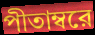
পীতাম্বরে